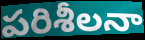
పరిశీలనా